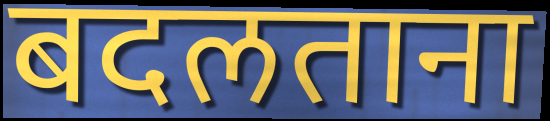
बदलताना